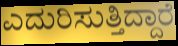
ಎದುರಿಸುತ್ತಿದ್ದಾರೆ